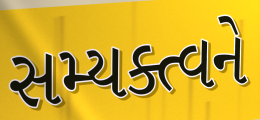
સમ્યક્ત્વને